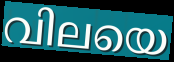
വിലയെ